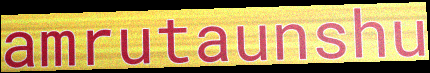
amrutaunshu